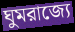
ঘুমরাজ্যে